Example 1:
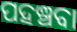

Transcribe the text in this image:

ପହଞ୍ଚବା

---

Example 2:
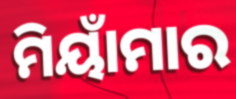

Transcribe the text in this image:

ମିୟାଁମାର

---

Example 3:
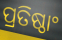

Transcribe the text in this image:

ପ୍ରତିଷ୍ଠାଂ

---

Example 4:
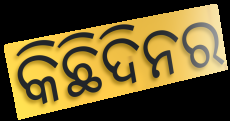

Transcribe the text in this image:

କିଛିଦିନର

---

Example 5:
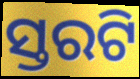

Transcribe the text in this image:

ସ୍ତରଟି